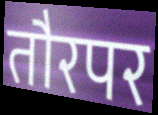
तौरपर